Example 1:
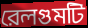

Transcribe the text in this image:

রেলগুমটি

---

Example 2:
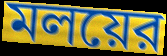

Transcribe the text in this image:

মলয়ের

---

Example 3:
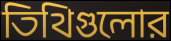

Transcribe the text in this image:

তিথিগুলোর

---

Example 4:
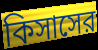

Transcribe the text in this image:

কিসাসের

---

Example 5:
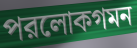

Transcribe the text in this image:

পরলোকগমন